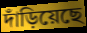
দাঁড়িয়েছে